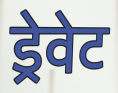
ड्रेवेट